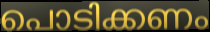
പൊടിക്കണം